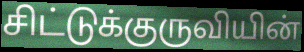
சிட்டுக்குருவியின்